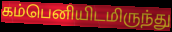
கம்பெனியிடமிருந்து